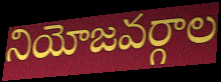
నియోజవర్గాల